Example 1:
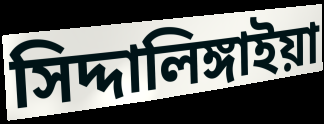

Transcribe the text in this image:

সিদ্দালিঙ্গাইয়া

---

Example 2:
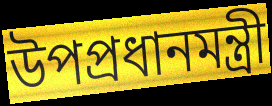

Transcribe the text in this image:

উপপ্রধানমন্ত্রী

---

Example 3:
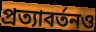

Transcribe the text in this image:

প্রত্যাবর্তনও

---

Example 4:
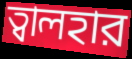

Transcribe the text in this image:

ত্বালহার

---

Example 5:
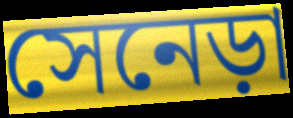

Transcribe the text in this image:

সেনেড়া